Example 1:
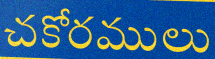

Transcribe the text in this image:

చకోరములు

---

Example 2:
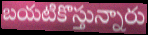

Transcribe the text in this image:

బయటికొస్తున్నారు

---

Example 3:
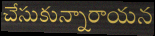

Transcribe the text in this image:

చేసుకున్నారాయన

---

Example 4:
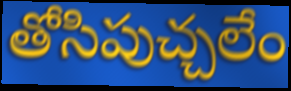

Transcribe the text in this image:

తోసిపుచ్చలేం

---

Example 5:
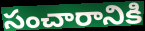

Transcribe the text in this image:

సంచారానికి